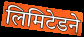
लिमिटेडने